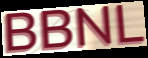
BBNL